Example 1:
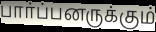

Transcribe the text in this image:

பார்ப்பனருக்கும்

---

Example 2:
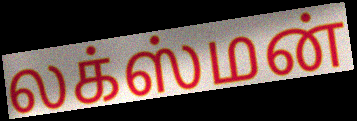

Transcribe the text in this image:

லக்ஸ்மன்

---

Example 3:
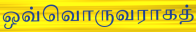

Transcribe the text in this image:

ஒவ்வொருவராகத்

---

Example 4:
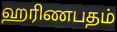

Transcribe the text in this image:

ஹரிணபதம்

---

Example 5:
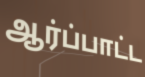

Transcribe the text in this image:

ஆர்ப்பாட்ட